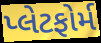
પ્લેટફોર્મ